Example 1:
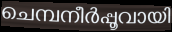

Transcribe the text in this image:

ചെമ്പനീർപ്പൂവായി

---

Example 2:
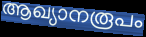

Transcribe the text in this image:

ആഖ്യാനരൂപം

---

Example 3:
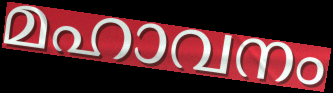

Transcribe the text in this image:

മഹാവനം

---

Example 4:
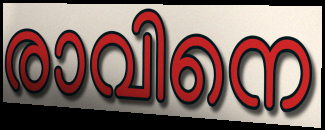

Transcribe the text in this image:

രാവിനെ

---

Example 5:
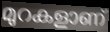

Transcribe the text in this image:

മുറകളാണ്